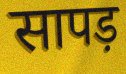
सापड़